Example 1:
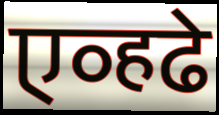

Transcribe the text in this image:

एव्हढे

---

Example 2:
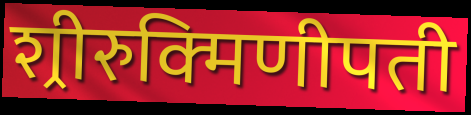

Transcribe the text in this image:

श्रीरुक्मिणीपती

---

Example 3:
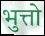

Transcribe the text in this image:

भुत्तो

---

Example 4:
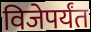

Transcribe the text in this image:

विजेपर्यंत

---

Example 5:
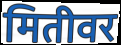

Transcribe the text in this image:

मितीवर